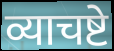
व्याचष्टे